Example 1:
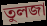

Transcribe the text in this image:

তুলজা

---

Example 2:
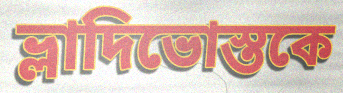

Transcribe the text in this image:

ভ্লাদিভোস্তকে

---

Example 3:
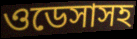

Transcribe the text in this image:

ওডেসাসহ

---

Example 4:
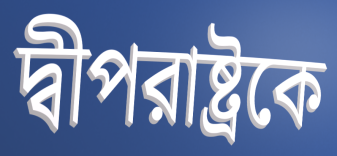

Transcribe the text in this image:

দ্বীপরাষ্ট্রকে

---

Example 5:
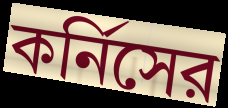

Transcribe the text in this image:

কর্নিসের